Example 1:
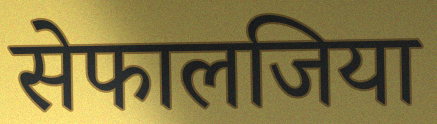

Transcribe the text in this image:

सेफालजिया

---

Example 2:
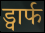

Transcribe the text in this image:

ड्वार्फ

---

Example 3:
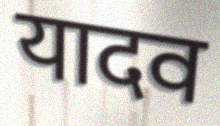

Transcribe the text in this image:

यादव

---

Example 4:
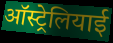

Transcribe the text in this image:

ऑस्ट्रेलियाई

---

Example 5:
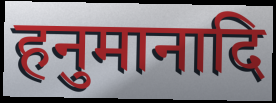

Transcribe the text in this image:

हनुमानादि